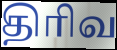
திரிவ